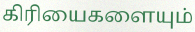
கிரியைகளையும்